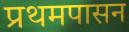
प्रथमपासन